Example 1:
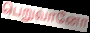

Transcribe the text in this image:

பெறுவானோ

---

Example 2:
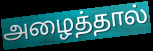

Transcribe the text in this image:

அழைத்தால்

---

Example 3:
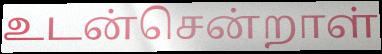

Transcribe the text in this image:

உடன்சென்றாள்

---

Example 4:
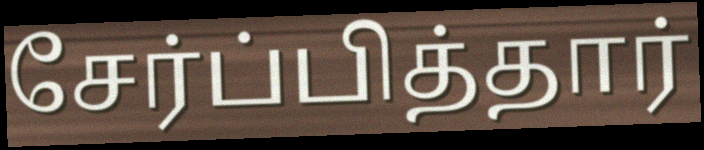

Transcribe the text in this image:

சேர்ப்பித்தார்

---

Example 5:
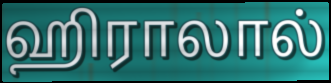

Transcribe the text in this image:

ஹிராலால்